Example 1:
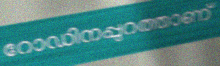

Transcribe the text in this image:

റോഡിനപ്പുറത്താണ്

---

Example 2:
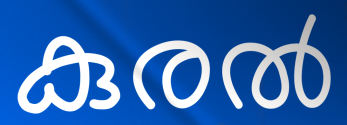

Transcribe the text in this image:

കുരൽ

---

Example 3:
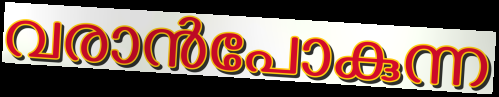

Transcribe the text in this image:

വരാൻപോകുന്ന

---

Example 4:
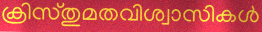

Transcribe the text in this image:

ക്രിസ്തുമതവിശ്വാസികൾ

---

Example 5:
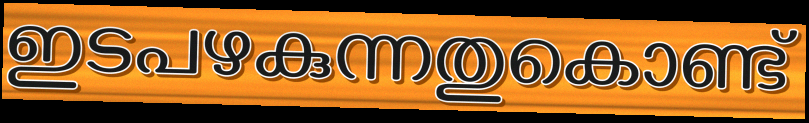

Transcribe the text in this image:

ഇടപഴകുന്നതുകൊണ്ട്